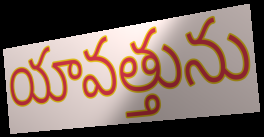
యావత్తును